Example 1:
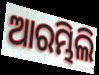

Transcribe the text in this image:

ଆରମ୍ଭିଲି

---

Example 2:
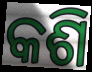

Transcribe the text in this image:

କଶି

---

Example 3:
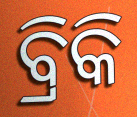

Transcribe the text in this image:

ବ୍ରିକି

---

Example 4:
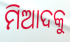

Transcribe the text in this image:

ମିଆଦକୁ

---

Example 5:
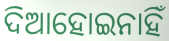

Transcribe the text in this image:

ଦିଆହୋଇନାହିଁ